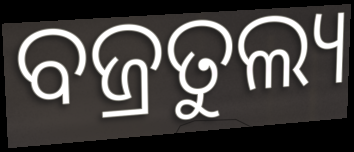
ବଜ୍ରତୁଲ୍ୟ